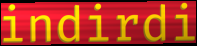
indirdi